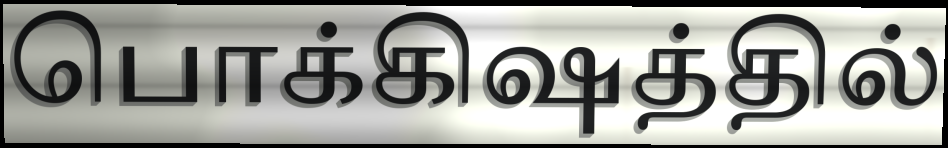
பொக்கிஷத்தில்